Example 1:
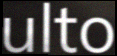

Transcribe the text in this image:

ulto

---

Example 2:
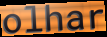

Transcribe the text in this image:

olhar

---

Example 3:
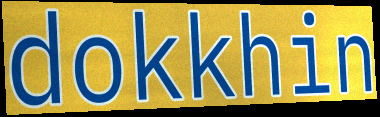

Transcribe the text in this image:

dokkhin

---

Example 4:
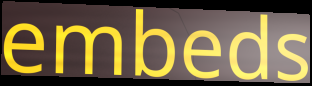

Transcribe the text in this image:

embeds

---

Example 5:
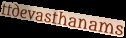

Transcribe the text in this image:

ttdevasthanams